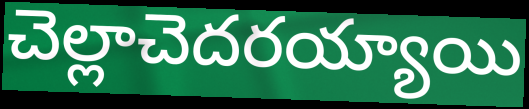
చెల్లాచెదరయ్యాయి